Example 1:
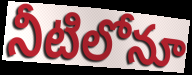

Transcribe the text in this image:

నీటిలోనూ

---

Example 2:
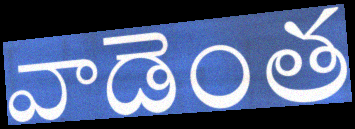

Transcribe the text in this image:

వాడెంత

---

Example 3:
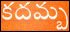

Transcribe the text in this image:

కదమ్బ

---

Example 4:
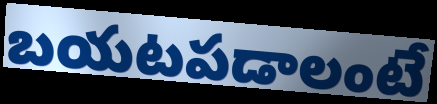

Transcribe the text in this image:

బయటపడాలంటే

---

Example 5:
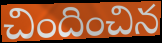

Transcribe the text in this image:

చిందించిన